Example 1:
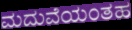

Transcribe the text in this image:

ಮದುವೆಯಂತಹ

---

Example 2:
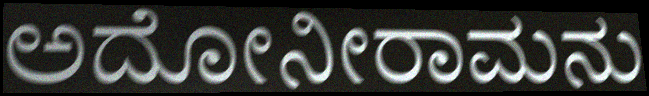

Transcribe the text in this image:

ಅದೋನೀರಾಮನು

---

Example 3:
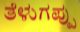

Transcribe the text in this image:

ತೆಳುಗಪ್ಪು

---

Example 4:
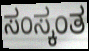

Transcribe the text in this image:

ಸಂಸ್ಕಂತ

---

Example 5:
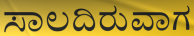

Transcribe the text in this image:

ಸಾಲದಿರುವಾಗ